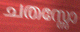
ചതസ്സോ